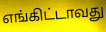
எங்கிட்டாவது